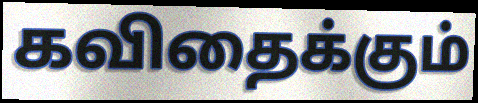
கவிதைக்கும்